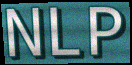
NLP